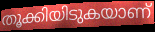
തൂക്കിയിടുകയാണ്